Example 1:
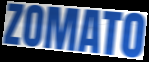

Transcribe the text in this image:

ZOMATO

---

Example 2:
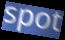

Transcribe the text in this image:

spot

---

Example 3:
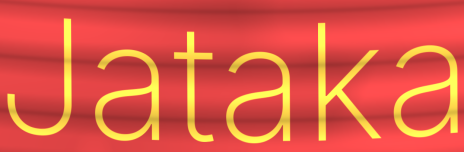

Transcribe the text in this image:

Jataka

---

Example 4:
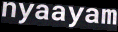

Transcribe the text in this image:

nyaayam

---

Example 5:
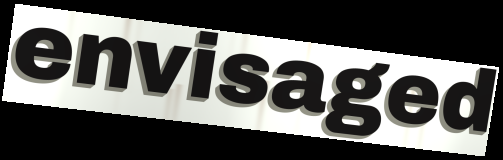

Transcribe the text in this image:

envisaged